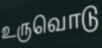
உருவொடு